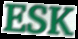
ESK